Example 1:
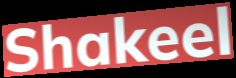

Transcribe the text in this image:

Shakeel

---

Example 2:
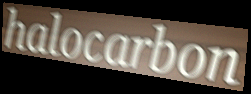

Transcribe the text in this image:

halocarbon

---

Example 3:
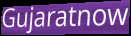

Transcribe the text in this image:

Gujaratnow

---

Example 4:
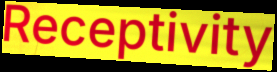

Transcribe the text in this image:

Receptivity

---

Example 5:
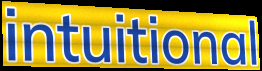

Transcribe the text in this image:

intuitional